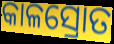
କାଳସ୍ରୋତ